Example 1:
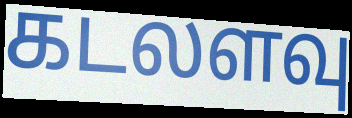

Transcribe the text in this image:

கடலளவு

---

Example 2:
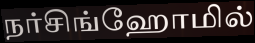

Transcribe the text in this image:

நர்சிங்ஹோமில்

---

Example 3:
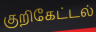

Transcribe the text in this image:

குறிகேட்டல்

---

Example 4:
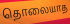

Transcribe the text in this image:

தொலையாத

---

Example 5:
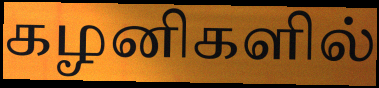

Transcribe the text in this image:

கழனிகளில்